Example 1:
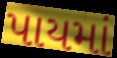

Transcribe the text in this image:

પાયમાં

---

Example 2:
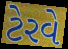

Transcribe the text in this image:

ટેરવે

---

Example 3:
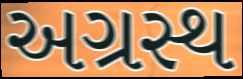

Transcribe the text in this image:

અગ્રસ્થ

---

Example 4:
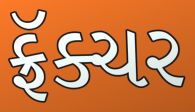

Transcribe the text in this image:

ફ્રૅક્ચર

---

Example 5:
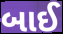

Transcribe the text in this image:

બાઈ